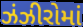
ઝંઝીરોમાં